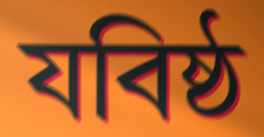
যবিষ্ঠ